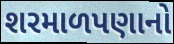
શરમાળપણાનો